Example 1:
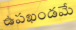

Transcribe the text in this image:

ఉపఖండమే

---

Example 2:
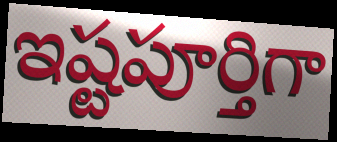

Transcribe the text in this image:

ఇష్టపూర్తిగా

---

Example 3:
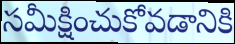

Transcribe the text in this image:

సమీక్షించుకోవడానికి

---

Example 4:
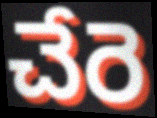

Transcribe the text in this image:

చేరె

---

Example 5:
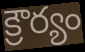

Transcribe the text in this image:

క్రౌర్యం